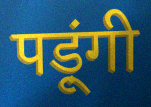
पड़ूंगी